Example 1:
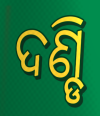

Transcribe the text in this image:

ଦଣ୍ଡି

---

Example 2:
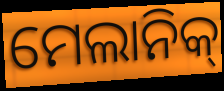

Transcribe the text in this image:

ମେଲାନିକ୍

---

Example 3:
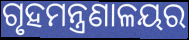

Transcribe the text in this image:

ଗୃହମନ୍ତ୍ରଣାଳୟର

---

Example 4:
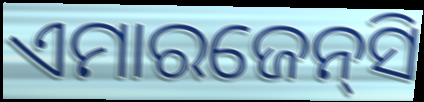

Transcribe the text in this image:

ଏମାରଜେନ୍‌ସି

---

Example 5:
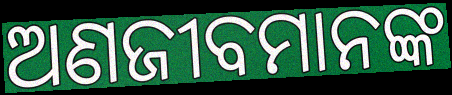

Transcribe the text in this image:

ଅଣଜୀବମାନଙ୍କ